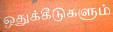
ஒதுக்கீடுகளும்